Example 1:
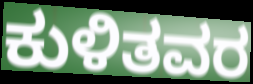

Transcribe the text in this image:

ಕುಳಿತವರ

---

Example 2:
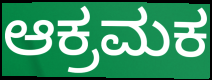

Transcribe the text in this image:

ಆಕ್ರಮಕ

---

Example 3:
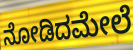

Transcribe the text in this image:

ನೋಡಿದಮೇಲೆ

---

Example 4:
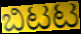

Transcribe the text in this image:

ಬಿಟಟ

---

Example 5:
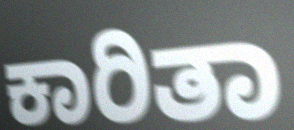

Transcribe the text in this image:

ಕಾರಿತಾ